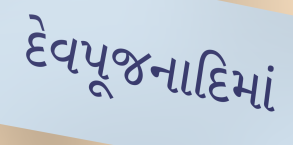
દેવપૂજનાદિમાં